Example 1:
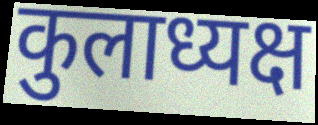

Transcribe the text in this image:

कुलाध्यक्ष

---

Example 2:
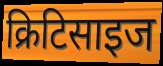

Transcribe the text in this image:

क्रिटिसाइज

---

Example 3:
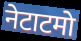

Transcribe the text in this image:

नेटाटमो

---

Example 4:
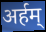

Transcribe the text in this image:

अर्हम्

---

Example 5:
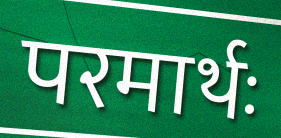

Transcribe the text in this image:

परमार्थः